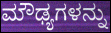
ಮೌಢ್ಯಗಳನ್ನು